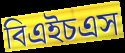
বিএইচএস